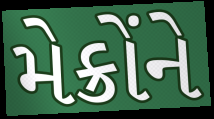
મેક્રોંને